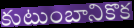
కుటుంబానికొక